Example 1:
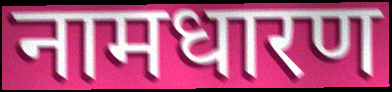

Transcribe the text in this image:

नामधारण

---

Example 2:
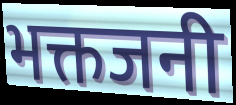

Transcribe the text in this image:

भक्तजनी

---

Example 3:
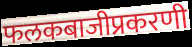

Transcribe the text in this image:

फलकबाजीप्रकरणी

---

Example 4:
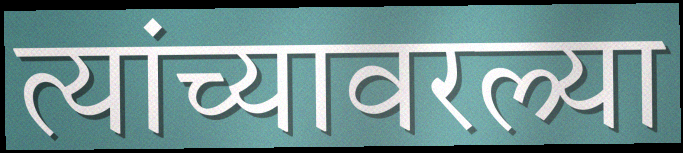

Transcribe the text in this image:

त्यांच्यावरल्या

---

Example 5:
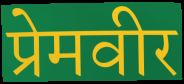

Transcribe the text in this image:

प्रेमवीर